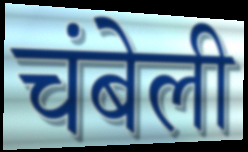
चंबेली